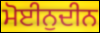
ਮੋਈਨੁਦੀਨ